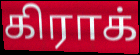
கிராக்